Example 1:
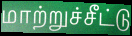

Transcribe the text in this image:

மாற்றுச்சீட்டு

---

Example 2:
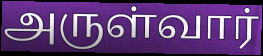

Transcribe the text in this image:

அருள்வார்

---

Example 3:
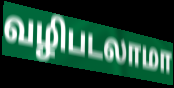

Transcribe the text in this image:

வழிபடலாமா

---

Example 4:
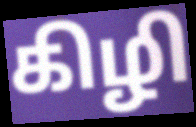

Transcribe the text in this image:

கிழி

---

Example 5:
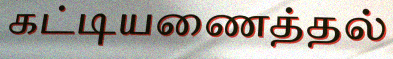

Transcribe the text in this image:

கட்டியணைத்தல்